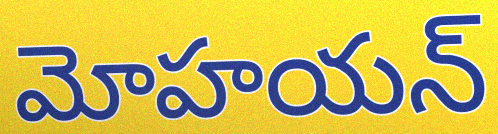
మోహయన్